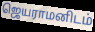
ஜெயராமனிடம்